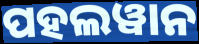
ପହଲୱାନ